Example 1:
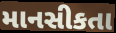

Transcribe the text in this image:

માનસીકતા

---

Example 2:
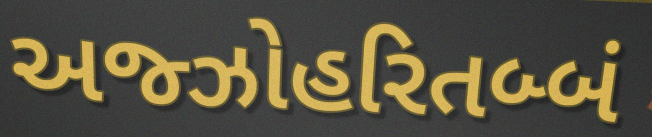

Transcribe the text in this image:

અજ્ઝોહરિતબ્બં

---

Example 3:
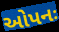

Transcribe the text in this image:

ઓપનઃ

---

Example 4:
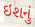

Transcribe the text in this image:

ઇશનું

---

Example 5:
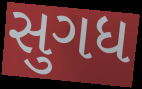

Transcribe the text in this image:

સુગધ